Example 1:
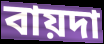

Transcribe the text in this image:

বায়দা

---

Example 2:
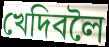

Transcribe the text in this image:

খেদিবলৈ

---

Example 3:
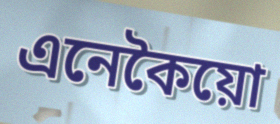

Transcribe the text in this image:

এনেকৈয়ো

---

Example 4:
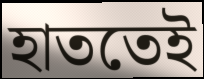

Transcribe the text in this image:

হাততেই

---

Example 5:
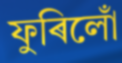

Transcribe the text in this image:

ফুৰিলোঁ